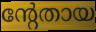
ന്റേതായ